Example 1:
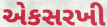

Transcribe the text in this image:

એકસરખી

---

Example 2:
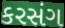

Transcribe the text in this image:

કરસંગ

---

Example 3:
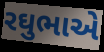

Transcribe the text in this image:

રઘુભાએ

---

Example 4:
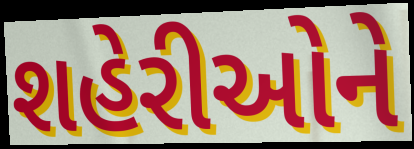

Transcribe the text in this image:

શહેરીઓને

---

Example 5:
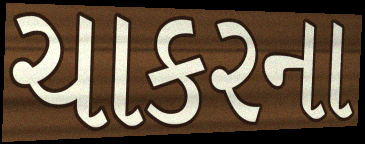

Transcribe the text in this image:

ચાકરના